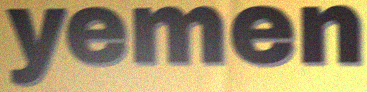
yemen